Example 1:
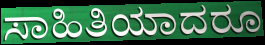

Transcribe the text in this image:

ಸಾಹಿತಿಯಾದರೂ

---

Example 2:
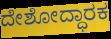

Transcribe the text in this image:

ದೇಶೋದ್ಧಾರಕ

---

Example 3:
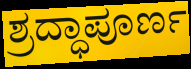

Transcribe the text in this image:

ಶ್ರದ್ಧಾಪೂರ್ಣ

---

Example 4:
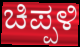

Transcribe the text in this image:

ಚಿಪ್ಪಳಿ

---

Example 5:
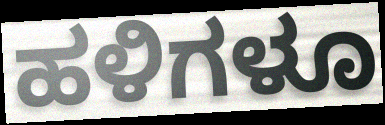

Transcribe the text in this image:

ಹಳಿಗಳೂ